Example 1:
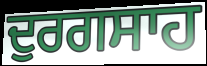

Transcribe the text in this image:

ਦੁਰਗਸਾਹ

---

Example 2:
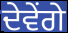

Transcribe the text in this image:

ਦੇਵੇਂਗੇ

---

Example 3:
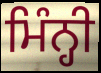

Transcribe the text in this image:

ਮਿੰਨ੍ਹੀ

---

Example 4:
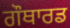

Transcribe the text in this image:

ਗੌਥਾਰਡ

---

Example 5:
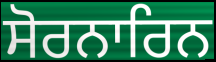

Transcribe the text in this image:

ਸੋਰਨਾਰਿਨ